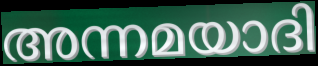
അന്നമയാദി